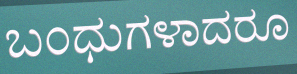
ಬಂಧುಗಳಾದರೂ